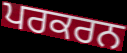
ਪਰਕਰਨ